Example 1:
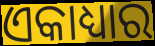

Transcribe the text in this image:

ଏକାଧ୍ୟାର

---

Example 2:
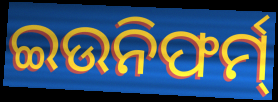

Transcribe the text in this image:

ଇଉନିଫର୍ମ୍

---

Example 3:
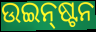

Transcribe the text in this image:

ଉଇନ୍‌ଷ୍ଟନ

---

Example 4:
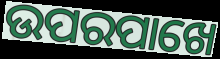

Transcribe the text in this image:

ଉପରପାଖେ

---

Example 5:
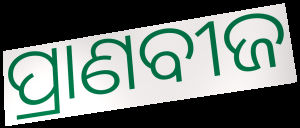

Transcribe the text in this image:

ପ୍ରାଣବୀଜ